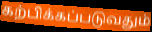
கற்பிக்கப்படுவதும்